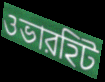
ওভারহিট